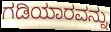
ಗಡಿಯಾರವನ್ನು